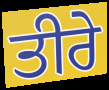
ਤੀਰੇ